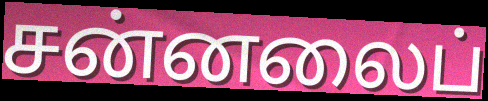
சன்னலைப்